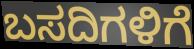
ಬಸದಿಗಳಿಗೆ